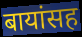
बायांसह